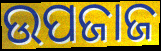
ଉପଜାଜ